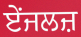
ਏਂਜਲਜ਼